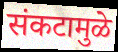
संकटामुळे